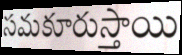
సమకూరుస్తాయి